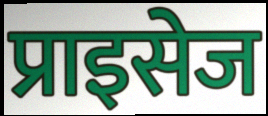
प्राइसेज